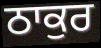
ਠਾਕੁਰ